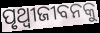
ପୃଥ୍ୱୀଜୀବନକୁ